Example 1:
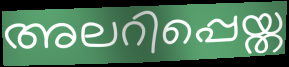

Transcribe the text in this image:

അലറിപ്പെയ്ത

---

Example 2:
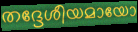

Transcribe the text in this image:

തദ്ദേശീയമായോ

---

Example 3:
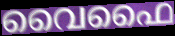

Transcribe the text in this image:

വൈഫൈ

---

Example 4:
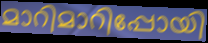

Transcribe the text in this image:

മാറിമാറിപ്പോയി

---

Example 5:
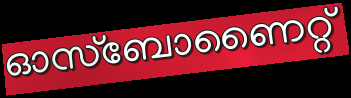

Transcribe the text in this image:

ഓസ്ബോണൈറ്റ്